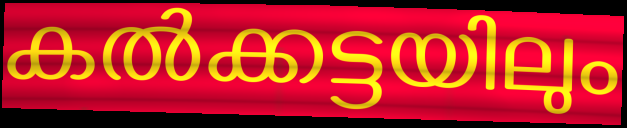
കൽക്കട്ടയിലും